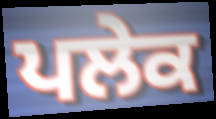
ਪਲੇਕ